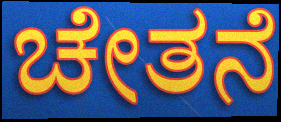
ಚೇತನೆ